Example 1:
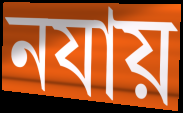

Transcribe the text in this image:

নযায়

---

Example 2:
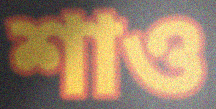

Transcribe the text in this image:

শাও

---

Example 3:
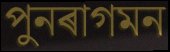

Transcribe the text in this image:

পুনৰাগমন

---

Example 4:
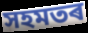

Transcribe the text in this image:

সহমতৰ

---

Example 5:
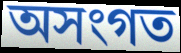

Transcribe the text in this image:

অসংগত